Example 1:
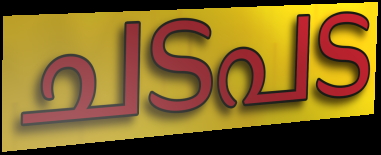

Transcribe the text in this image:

ചടപട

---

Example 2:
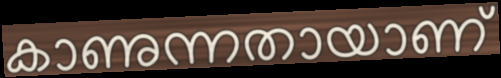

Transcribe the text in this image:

കാണുന്നതായാണ്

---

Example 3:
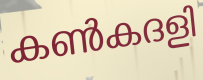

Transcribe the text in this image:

കൺകദളി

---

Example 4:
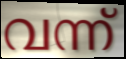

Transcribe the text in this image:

വന്ന്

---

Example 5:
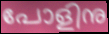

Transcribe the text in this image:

പോളിനു